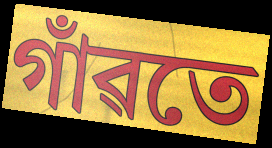
গাঁৱতে